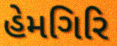
હેમગિરિ